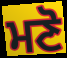
ਮਣੋ